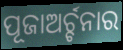
ପୂଜାଅର୍ଚ୍ଚନାର